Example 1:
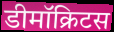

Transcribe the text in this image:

डीमॉक्रिटस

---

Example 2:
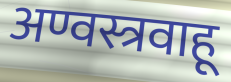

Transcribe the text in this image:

अण्वस्त्रवाहू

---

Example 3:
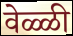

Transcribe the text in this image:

वेळ्ळी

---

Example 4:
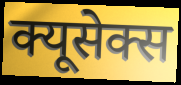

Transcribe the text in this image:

क्यूसेक्स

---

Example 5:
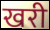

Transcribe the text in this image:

खरी